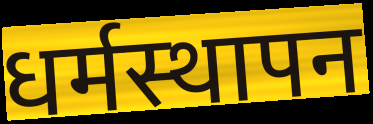
धर्मस्थापन